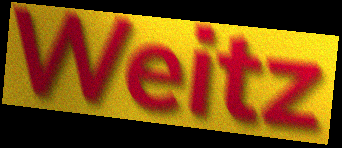
Weitz